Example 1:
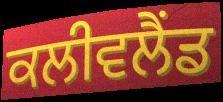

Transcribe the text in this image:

ਕਲੀਵਲੈਂਡ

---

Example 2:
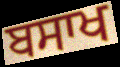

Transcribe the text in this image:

ਬਸਾਖ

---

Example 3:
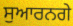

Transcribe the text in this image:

ਸੁਆਰਨਗੇ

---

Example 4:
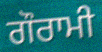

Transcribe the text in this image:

ਗੌਰਾਮੀ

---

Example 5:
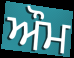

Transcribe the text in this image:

ਔਮ